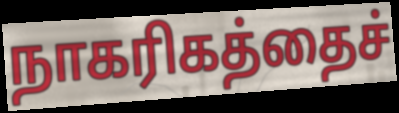
நாகரிகத்தைச்